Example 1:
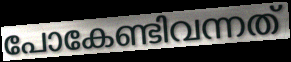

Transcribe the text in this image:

പോകേണ്ടിവന്നത്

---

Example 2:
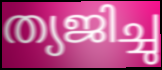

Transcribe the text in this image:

ത്യജിച്ചു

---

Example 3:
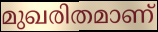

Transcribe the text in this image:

മുഖരിതമാണ്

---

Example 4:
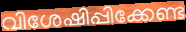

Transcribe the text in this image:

വിശേഷിപ്പിക്കേണ്ട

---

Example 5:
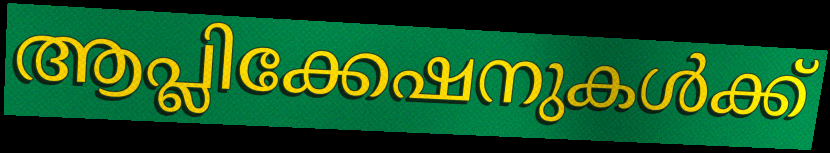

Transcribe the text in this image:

ആപ്ലിക്കേഷനുകൾക്ക്